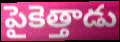
పైకెత్తాడు